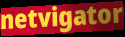
netvigator